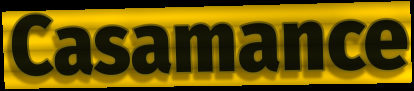
Casamance